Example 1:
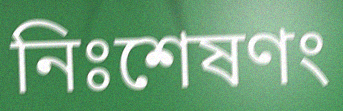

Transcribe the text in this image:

নিঃশেষণং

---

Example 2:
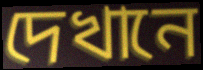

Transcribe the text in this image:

দেখানে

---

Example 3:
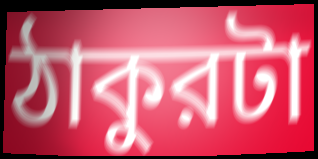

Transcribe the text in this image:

ঠাকুরটা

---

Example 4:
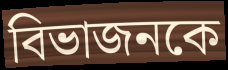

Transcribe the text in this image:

বিভাজনকে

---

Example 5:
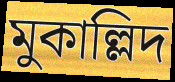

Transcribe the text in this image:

মুকাল্লিদ